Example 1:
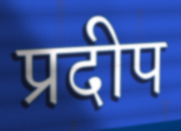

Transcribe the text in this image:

प्रदीप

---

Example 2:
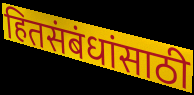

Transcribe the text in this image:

हितसंबंधांसाठी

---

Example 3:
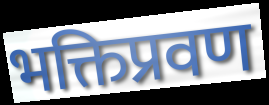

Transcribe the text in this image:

भक्तिप्रवण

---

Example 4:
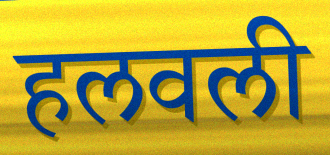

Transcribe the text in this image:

हलवली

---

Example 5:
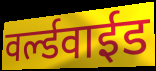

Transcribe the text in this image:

वर्ल्डवाईड